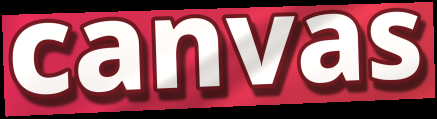
canvas